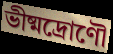
ভীষ্মদ্রোণৌ